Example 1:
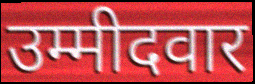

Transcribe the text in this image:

उम्मीदवार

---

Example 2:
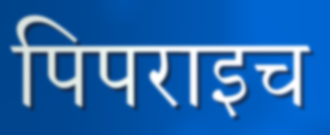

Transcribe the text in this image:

पिपराइच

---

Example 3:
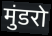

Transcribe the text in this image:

मुंडरो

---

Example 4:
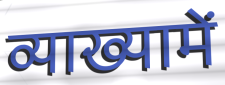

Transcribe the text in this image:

व्याख्यामें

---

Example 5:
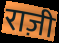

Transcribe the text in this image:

राज़ी